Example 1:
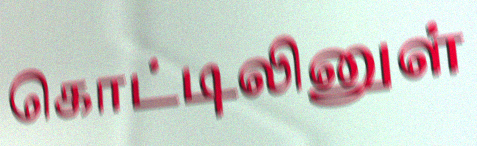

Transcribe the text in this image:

கொட்டிலினுள்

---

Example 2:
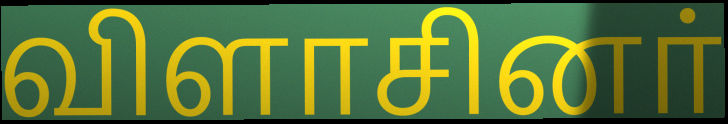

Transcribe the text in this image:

விளாசினர்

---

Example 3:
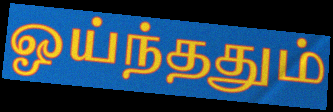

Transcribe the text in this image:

ஓய்ந்ததும்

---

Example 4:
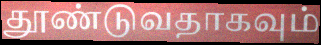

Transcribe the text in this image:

தூண்டுவதாகவும்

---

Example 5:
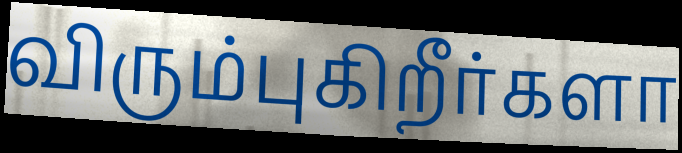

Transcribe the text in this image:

விரும்புகிறீர்களா